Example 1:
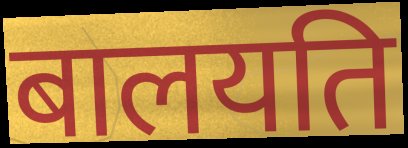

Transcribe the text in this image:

बालयति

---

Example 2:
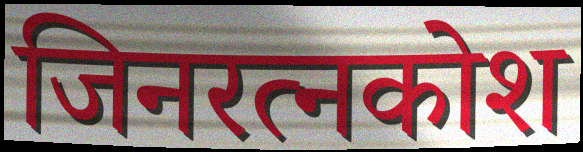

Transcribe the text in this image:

जिनरत्नकोश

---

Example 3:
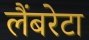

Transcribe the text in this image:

लैंबरेटा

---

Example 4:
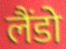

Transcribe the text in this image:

लैंडो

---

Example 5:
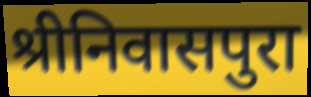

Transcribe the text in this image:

श्रीनिवासपुरा